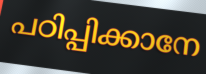
പഠിപ്പിക്കാനേ